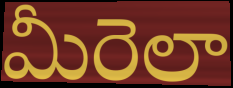
మీరెలా